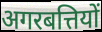
अगरबत्तियों